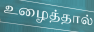
உழைத்தால்